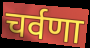
चर्वणा